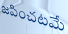
జపించటమే